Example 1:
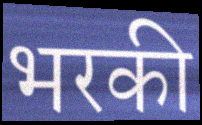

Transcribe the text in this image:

भरकी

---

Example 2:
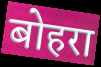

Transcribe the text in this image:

बोहरा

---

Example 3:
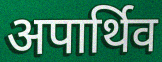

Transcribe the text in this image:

अपार्थिव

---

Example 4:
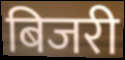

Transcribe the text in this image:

बिजरी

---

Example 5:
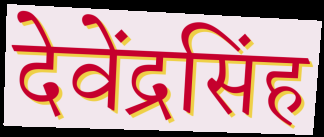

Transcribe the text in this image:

देवेंद्रसिंह